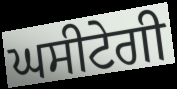
ਘਸੀਟੇਗੀ